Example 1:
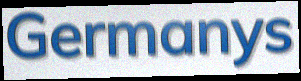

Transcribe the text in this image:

Germanys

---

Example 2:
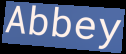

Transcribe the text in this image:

Abbey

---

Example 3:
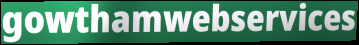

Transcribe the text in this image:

gowthamwebservices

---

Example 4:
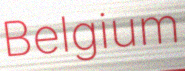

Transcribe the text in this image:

Belgium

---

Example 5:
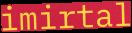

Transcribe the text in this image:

imirtal